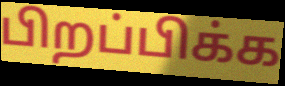
பிறப்பிக்க